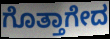
ಗೊತ್ತಾಗೇದ